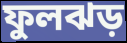
ফুলঝড়